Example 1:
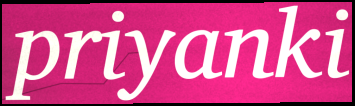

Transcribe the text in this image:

priyanki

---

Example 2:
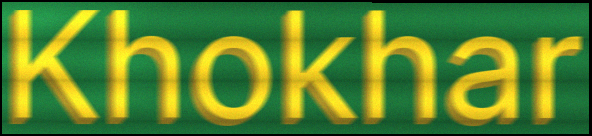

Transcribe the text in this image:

Khokhar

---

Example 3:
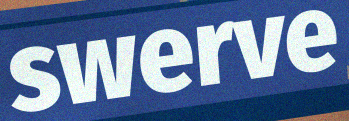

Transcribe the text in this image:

swerve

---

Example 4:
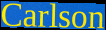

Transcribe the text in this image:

Carlson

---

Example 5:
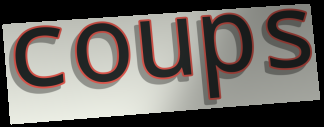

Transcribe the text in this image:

coups